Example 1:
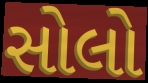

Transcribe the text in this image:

સોલો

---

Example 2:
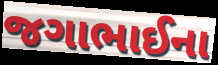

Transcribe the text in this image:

જગાભાઈના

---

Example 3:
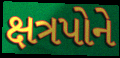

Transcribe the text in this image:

ક્ષત્રપોને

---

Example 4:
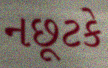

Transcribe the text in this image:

નછૂટકે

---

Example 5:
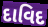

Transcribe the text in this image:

દાવિદ